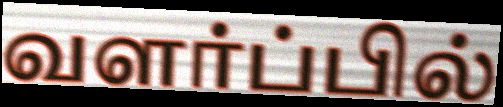
வளர்ப்பில்